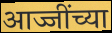
आज्जींच्या